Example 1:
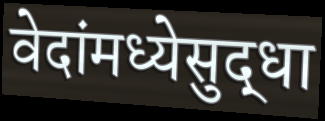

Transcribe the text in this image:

वेदांमध्येसुद्धा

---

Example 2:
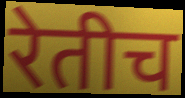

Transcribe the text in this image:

रेतीच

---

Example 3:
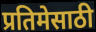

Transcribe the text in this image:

प्रतिमेसाठी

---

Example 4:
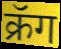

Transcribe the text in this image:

क्रॅग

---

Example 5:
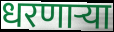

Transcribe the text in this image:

धरणाऱ्या